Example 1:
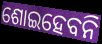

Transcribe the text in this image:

ଶୋଇହେବନି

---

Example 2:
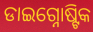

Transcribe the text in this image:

ଡାଇଗ୍ନୋଷ୍ଟିକ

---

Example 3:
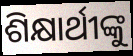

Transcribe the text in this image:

ଶିକ୍ଷାର୍ଥୀଙ୍କୁ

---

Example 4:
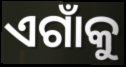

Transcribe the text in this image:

ଏଗାଁକୁ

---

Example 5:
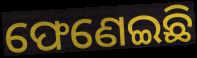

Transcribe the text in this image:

ଫେଣେଇଛି